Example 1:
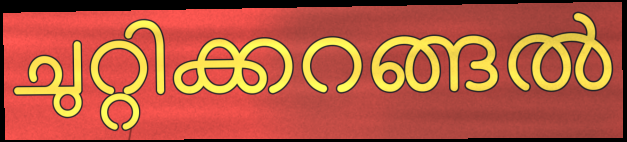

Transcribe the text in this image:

ചുറ്റിക്കറങ്ങൽ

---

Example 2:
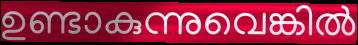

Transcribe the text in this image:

ഉണ്ടാകുന്നുവെങ്കിൽ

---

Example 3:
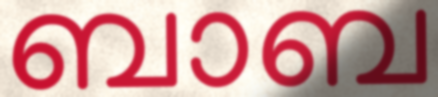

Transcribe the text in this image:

ബാബ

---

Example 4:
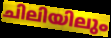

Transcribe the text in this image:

ചിലിയിലും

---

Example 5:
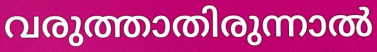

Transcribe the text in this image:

വരുത്താതിരുന്നാൽ